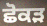
ਛੋਕੜ